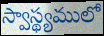
స్వాస్థ్యములో